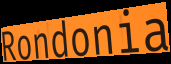
Rondonia